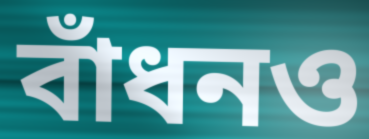
বাঁধনও